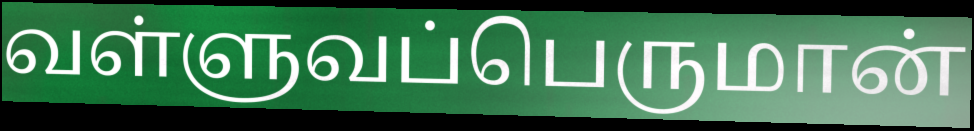
வள்ளுவப்பெருமான்